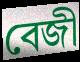
বেজী